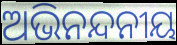
ଅଭିନନ୍ଦନୀୟ